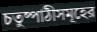
চতুষ্পাঠীসমূহের